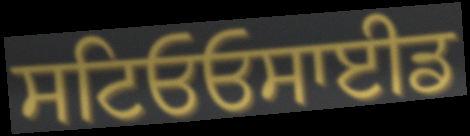
ਸਟਿਓਓਸਾਈਡ